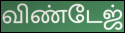
விண்டேஜ்